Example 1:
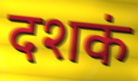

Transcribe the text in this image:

दशकं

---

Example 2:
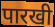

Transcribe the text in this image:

पारखी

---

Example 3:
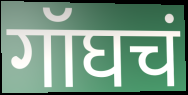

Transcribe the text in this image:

गॉघचं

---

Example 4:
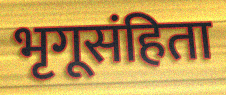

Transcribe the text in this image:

भृगूसंहिता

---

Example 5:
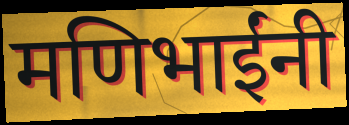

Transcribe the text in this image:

मणिभाईंनी